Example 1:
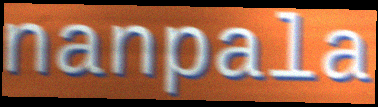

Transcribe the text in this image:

nanpala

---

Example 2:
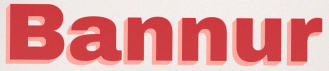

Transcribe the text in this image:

Bannur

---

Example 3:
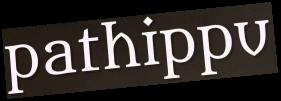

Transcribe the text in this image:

pathippu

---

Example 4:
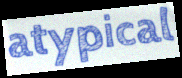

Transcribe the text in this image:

atypical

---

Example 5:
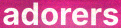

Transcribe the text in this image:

adorers